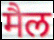
मैल